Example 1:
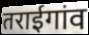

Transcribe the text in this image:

तराईगांव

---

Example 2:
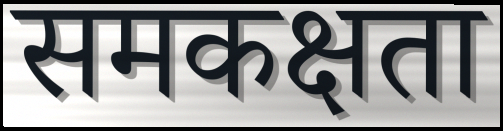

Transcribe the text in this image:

समकक्षता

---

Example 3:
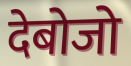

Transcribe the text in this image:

देबोजो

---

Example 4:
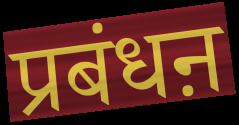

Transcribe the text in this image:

प्रबंधऩ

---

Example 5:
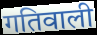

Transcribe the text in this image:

गतिवाली